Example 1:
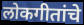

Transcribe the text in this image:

लोकगीतांचे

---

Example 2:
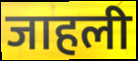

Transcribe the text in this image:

जाहली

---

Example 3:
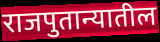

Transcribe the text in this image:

राजपुतान्यातील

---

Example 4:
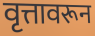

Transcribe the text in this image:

वृत्तावरून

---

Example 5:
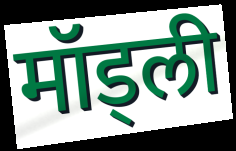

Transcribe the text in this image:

मॉड्ली